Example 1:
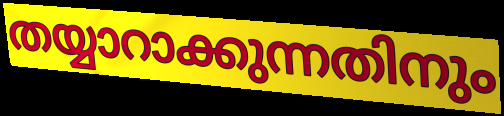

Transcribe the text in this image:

തയ്യാറാക്കുന്നതിനും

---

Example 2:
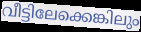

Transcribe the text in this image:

വീട്ടിലേക്കെങ്കിലും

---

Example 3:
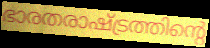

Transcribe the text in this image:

ഭാരതരാഷ്ട്രത്തിന്റെ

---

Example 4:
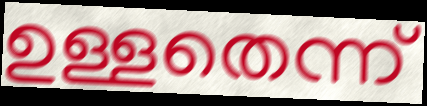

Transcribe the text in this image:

ഉള്ളതെന്ന്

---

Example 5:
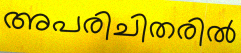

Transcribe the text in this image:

അപരിചിതരിൽ